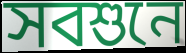
সবশুনে